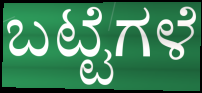
ಬಟ್ಟೆಗಳೆ